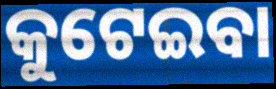
କୁଟେଇବା